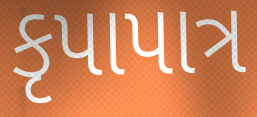
કૃપાપાત્ર